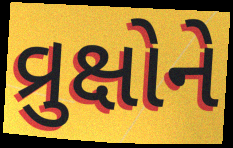
વ્રુક્ષોને